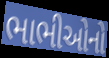
ભાભીઓનો